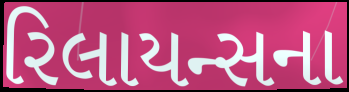
રિલાયન્સના